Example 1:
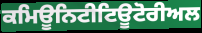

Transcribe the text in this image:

ਕਮਿਊਨਿਟੀਟਿਊਟੋਰੀਅਲ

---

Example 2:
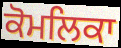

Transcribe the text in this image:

ਕੋਮਲਿਕਾ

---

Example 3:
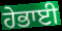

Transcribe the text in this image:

ਹੇਭਾਈ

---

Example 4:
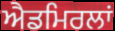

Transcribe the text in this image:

ਐਡਮਿਰਲਾਂ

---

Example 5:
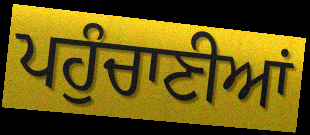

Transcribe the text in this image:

ਪਹੁੰਚਾਣੀਆਂ